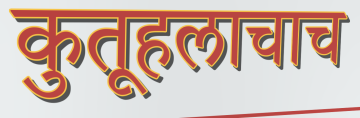
कुतूहलाचाच